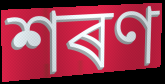
শৰণ